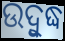
ଉଦ୍ୱୁଦ୍ଧ